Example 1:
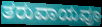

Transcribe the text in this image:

ತರುವಾಯವೂ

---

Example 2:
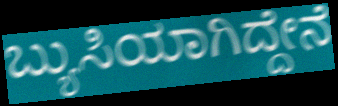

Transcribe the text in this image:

ಬ್ಯುಸಿಯಾಗಿದ್ದೇನೆ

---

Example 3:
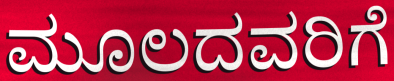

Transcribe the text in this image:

ಮೂಲದವರಿಗೆ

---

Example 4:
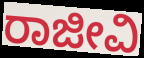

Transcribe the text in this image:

ರಾಜೀವಿ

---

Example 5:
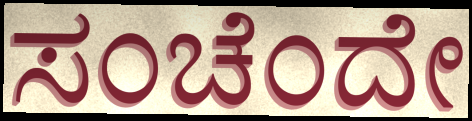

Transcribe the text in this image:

ಸಂಚೆಂದೇ